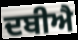
ਦਬੀਐ